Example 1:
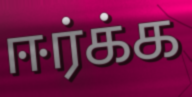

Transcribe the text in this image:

ஈர்க்க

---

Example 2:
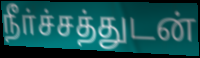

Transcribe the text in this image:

நீர்ச்சத்துடன்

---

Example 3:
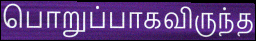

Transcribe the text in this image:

பொறுப்பாகவிருந்த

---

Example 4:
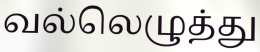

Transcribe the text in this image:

வல்லெழுத்து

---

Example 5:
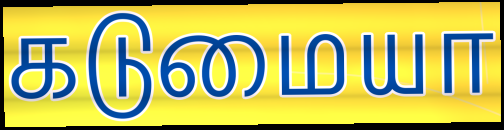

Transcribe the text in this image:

கடுமையா